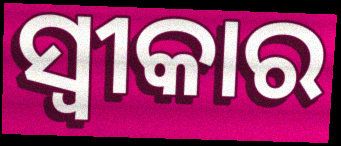
ସ୍ଵୀକାର